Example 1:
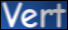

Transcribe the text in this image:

Vert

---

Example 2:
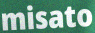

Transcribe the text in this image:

misato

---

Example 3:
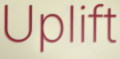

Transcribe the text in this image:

Uplift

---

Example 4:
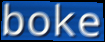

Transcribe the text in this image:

boke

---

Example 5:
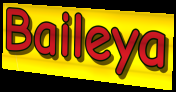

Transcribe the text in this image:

Baileya